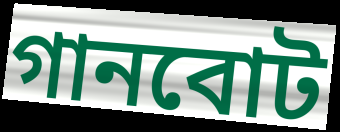
গানবোট